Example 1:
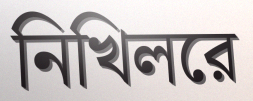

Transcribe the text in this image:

নিখিলরে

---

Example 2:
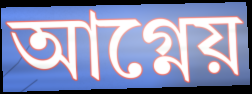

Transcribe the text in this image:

আগ্নেয়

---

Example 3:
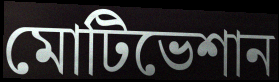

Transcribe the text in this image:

মোটিভেশান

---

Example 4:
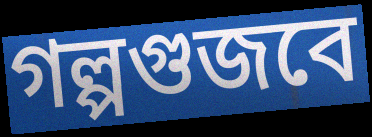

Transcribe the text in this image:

গল্পগুজবে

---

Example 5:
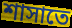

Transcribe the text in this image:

শাসাতে